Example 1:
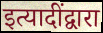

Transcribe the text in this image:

इत्यादींद्वारा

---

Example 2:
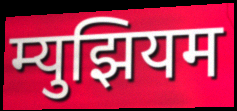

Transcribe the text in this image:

म्युझियम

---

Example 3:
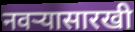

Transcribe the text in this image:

नवऱ्यासारखी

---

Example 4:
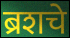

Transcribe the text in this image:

ब्रशचे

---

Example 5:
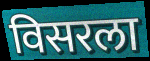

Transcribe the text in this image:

विसरला